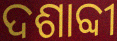
ଦଶାବ୍ଦୀ